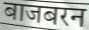
बाजबरन